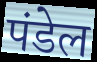
पंडेल